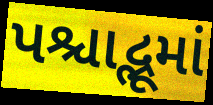
પશ્ચાદ્ભૂમાં